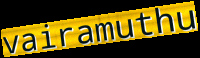
vairamuthu